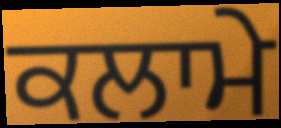
ਕਲਾਮੇ